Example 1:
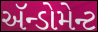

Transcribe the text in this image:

ઍન્ડોમેન્ટ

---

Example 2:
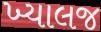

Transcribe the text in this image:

ખ્યાલજ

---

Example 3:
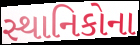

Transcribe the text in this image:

સ્થાનિકોના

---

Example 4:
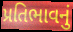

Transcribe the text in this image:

પ્રતિભાવનું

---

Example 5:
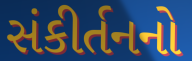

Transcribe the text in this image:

સંકીર્તનનો